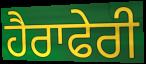
ਹੈਰਾਫੇਰੀ